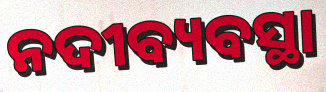
ନଦୀବ୍ୟବସ୍ଥା